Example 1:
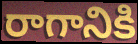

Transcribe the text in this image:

రాగానికి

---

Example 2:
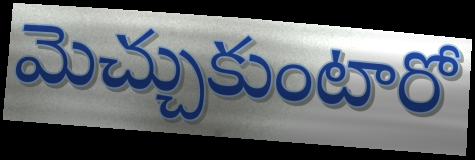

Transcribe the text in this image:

మెచ్చుకుంటారో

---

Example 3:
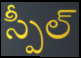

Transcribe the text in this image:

స్పీల్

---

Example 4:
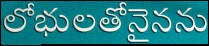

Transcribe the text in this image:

లోభులతోనైనను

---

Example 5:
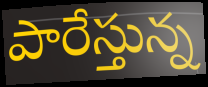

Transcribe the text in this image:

పారేస్తున్న